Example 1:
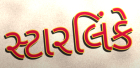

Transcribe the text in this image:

સ્ટારલિંકે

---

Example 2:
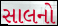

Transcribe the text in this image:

સાલનો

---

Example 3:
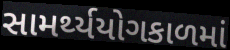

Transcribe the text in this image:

સામર્થ્યયોગકાળમાં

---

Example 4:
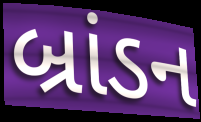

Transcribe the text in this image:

બ્રાંડન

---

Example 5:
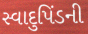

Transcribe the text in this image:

સ્વાદુપિંડની